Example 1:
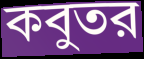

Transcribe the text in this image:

কবুতর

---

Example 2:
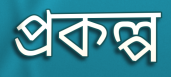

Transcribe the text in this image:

প্রকল্প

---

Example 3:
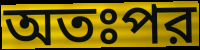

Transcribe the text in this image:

অতঃপর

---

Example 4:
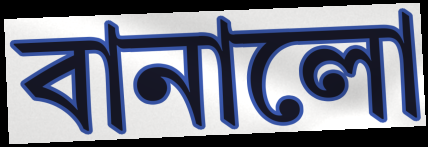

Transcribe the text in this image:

বানালো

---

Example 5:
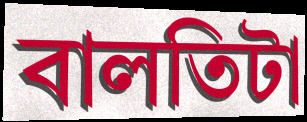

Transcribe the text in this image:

বালতিটা